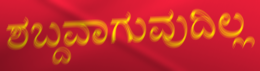
ಶಬ್ದವಾಗುವುದಿಲ್ಲ